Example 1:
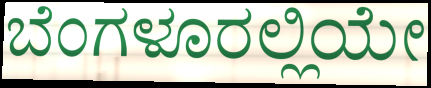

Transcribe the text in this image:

ಬೆಂಗಳೂರಲ್ಲಿಯೇ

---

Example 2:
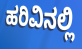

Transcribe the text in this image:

ಹರಿವಿನಲ್ಲಿ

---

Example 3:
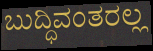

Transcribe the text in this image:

ಬುದ್ಧಿವಂತರಲ್ಲ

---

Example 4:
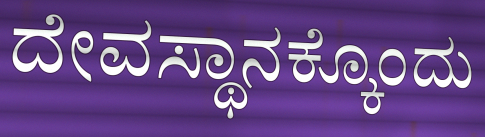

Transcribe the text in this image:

ದೇವಸ್ಥಾನಕ್ಕೊಂದು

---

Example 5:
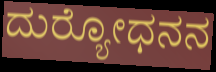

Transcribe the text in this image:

ದುರ‍್ಯೋಧನನ